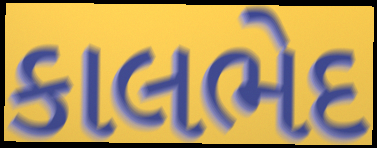
કાલભેદ